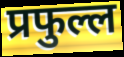
प्रफुल्ल